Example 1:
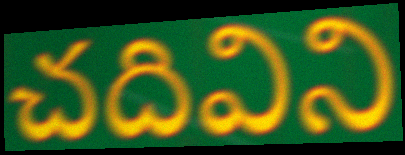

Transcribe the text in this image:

చదివిని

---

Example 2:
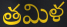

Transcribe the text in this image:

తమిళ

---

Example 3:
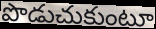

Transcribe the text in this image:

పొడుచుకుంటూ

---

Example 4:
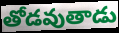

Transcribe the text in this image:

తోడవుతాడు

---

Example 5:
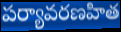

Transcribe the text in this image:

పర్యావరణహిత